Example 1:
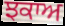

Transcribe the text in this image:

ਝਕਾਅ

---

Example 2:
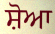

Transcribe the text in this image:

ਸ਼ੋਆ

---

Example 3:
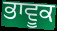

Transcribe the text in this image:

ਭਾਵੂਕ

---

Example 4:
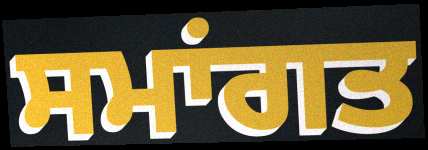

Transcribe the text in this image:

ਸਮਾਂਗਤ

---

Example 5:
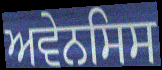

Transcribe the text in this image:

ਅਵੇਨਸਿਸ